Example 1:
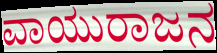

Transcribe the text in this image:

ವಾಯುರಾಜನ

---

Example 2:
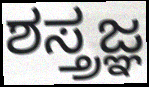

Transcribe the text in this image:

ಶಸ್ತ್ರಜ್ಞ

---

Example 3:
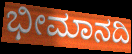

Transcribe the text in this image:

ಭೀಮಾನದಿ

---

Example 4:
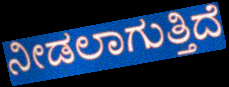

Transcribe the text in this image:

ನೀಡಲಾಗುತ್ತಿದೆ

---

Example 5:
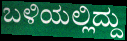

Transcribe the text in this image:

ಬಳಿಯಲ್ಲಿದ್ದು